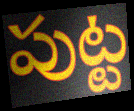
పుట్ట